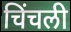
चिंचली